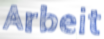
Arbeit